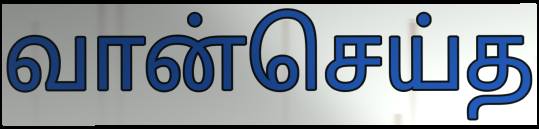
வான்செய்த